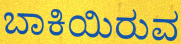
ಬಾಕಿಯಿರುವ